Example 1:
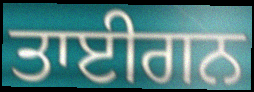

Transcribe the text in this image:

ਤਾਈਗਨ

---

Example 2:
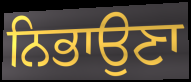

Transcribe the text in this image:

ਨਿਭਾਉਣਾ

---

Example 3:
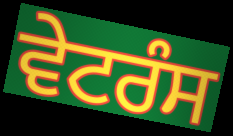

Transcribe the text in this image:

ਵੇਟਰੰਸ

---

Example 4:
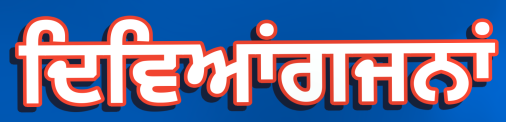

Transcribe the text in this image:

ਦਿਵਿਆਂਗਜਨਾਂ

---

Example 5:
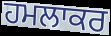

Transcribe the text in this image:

ਹਮਲਾਕਰ